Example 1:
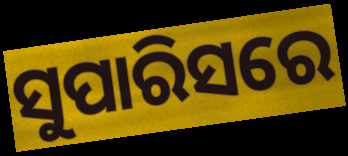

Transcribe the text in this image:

ସୁପାରିସରେ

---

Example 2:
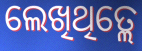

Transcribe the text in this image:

ଲେଖିଥିତ୍ଲେ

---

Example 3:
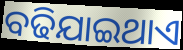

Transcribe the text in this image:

ବଢିଯାଇଥାଏ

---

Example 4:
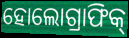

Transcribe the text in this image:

ହୋଲୋଗ୍ରାଫିକ୍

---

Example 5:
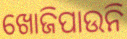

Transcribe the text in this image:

ଖୋଜିପାଉନି